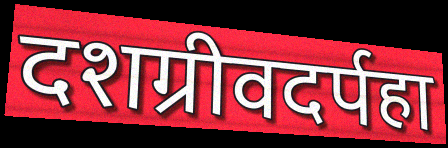
दशग्रीवदर्पहा